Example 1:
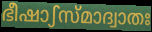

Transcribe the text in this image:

ഭീഷാഽസ്മാദ്വാതഃ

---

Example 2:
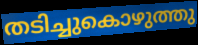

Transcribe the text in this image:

തടിച്ചുകൊഴുത്തു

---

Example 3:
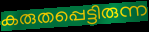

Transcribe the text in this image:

കരുതപ്പെട്ടിരുന്ന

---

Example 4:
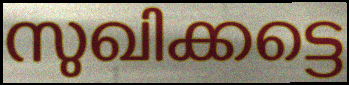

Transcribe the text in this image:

സുഖിക്കട്ടെ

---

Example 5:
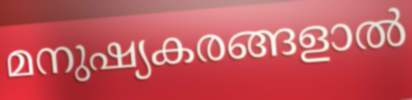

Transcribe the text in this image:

മനുഷ്യകരങ്ങളാൽ